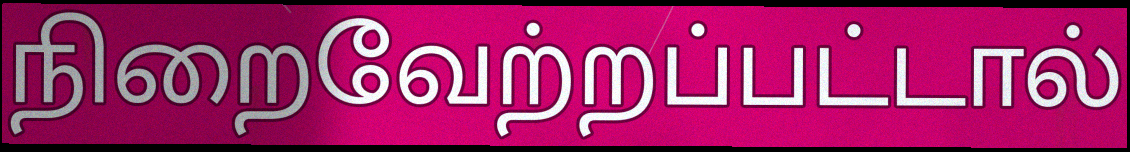
நிறைவேற்றப்பட்டால்